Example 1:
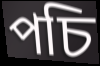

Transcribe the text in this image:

পচি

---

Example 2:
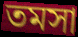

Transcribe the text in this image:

তমসা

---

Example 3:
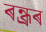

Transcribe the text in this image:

ৰন্ধ্ৰৰ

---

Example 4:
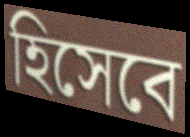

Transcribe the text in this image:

হিসেবে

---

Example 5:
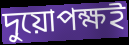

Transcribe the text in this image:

দুয়োপক্ষই